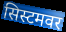
सिस्टमवर